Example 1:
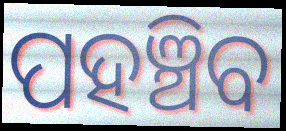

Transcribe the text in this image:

ପହଞ୍ଚିବ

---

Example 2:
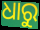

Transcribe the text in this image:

ଧାରୁ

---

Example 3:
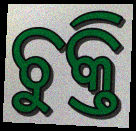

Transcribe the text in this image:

ଚୁକ୍ତି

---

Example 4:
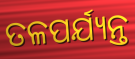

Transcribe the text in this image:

ତଳପର୍ଯ୍ୟନ୍ତ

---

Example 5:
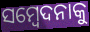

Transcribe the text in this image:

ସମ୍ବେଦନାକୁ